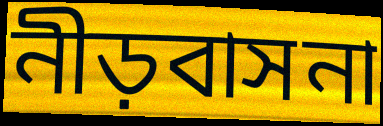
নীড়বাসনা